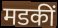
मडकीं